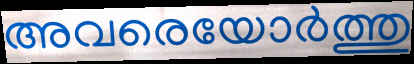
അവരെയോർത്തു